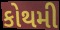
કોથમી